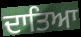
ਦਾਤਿਆ